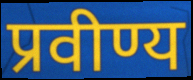
प्रवीण्य